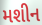
મશીન